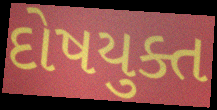
દોષયુક્ત